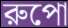
রুপো